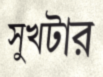
সুখটার